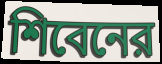
শিবেনের